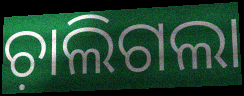
ଚ଼ାଲିଗଲା